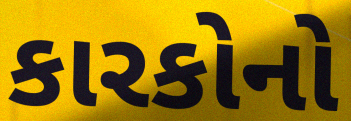
કારકોનો